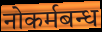
नोकर्मबन्ध